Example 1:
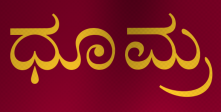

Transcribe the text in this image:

ಧೂಮ್ರ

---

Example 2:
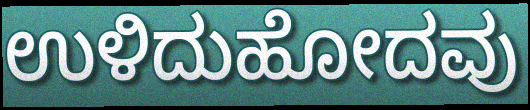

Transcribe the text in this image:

ಉಳಿದುಹೋದವು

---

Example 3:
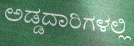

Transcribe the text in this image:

ಅಡ್ಡದಾರಿಗಳಲ್ಲಿ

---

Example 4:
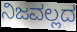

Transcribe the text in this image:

ನಿಜವಲ್ಲದ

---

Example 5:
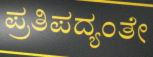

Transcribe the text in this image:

ಪ್ರತಿಪದ್ಯಂತೇ